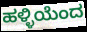
ಹಳ್ಳಿಯೆಂದ